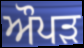
ਔਪੜ